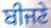
ਬੀਜਣੇ